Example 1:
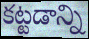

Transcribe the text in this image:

కట్టడాన్ని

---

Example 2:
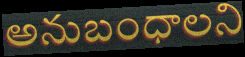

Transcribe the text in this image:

అనుబంధాలని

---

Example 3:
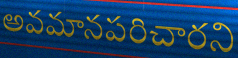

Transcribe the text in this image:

అవమానపరిచారని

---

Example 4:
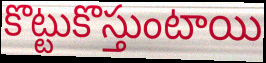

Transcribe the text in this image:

కొట్టుకొస్తుంటాయి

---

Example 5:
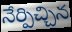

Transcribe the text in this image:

నేర్పిచ్చిన